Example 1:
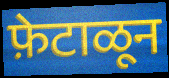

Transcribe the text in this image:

फ़ेटाळून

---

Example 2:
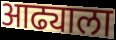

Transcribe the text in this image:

आढ्याला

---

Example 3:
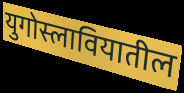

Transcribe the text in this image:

युगोस्लावियातील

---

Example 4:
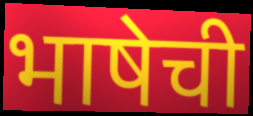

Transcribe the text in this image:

भाषेची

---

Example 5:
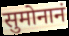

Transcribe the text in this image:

सुमोनानं